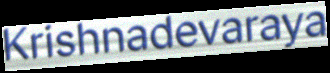
Krishnadevaraya